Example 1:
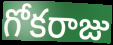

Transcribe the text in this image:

గోకరాజు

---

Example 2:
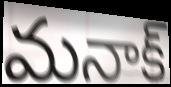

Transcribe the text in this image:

మనాక్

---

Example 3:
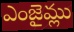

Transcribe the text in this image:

ఎంజైమ్లు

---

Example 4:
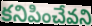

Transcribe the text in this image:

కనిపించేవని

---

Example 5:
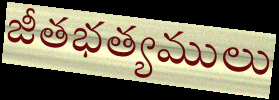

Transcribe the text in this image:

జీతభత్యములు